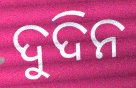
ଦୁଦିନ